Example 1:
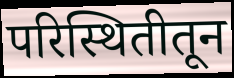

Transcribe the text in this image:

परिस्थितीतून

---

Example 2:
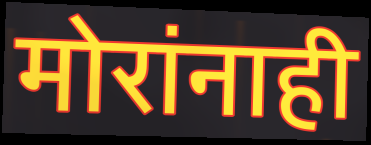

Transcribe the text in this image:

मोरांनाही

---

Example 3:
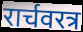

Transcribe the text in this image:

रार्चवरत्र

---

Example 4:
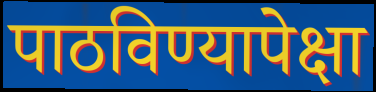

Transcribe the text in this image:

पाठविण्यापेक्षा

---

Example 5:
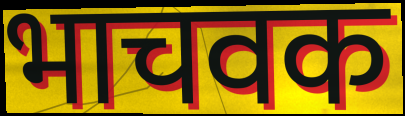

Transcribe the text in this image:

भाचवक